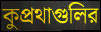
কুপ্রথাগুলির